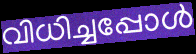
വിധിച്ചപ്പോൾ